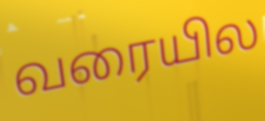
வரையில